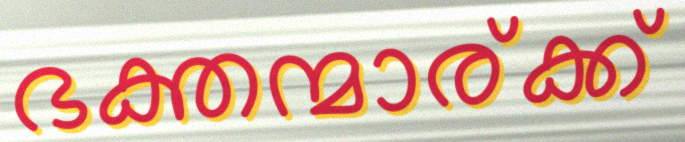
ഭക്തന്മാര്ക്ക്